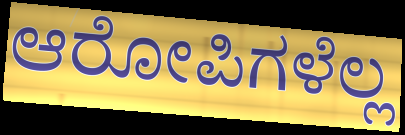
ಆರೋಪಿಗಳೆಲ್ಲ